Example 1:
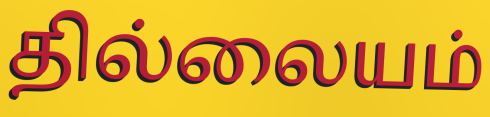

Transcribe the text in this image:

தில்லையம்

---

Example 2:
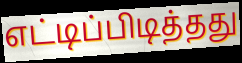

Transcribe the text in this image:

எட்டிப்பிடித்தது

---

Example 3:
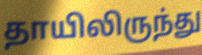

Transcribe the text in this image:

தாயிலிருந்து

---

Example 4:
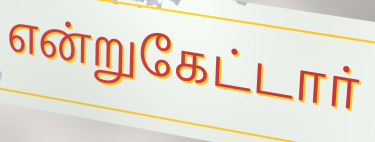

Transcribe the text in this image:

என்றுகேட்டார்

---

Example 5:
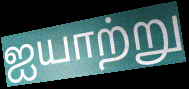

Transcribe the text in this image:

ஐயாற்று